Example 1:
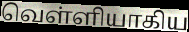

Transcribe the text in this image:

வெள்ளியாகிய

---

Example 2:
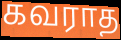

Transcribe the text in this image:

கவராத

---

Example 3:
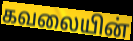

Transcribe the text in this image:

கவலையின்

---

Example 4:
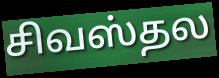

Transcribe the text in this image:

சிவஸ்தல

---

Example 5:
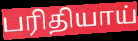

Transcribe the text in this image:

பரிதியாய்